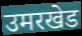
उमरखेड